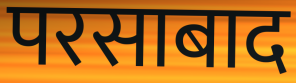
परसाबाद